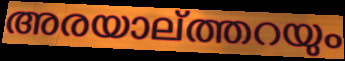
അരയാല്ത്തറയും